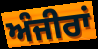
ਅੰਜੀਰਾਂ